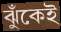
ঝুঁকেই